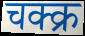
चक्क्र